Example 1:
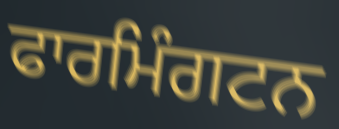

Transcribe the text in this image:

ਫਾਰਮਿੰਗਟਨ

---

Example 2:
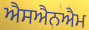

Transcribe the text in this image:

ਐਸਐਨਐਮ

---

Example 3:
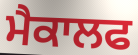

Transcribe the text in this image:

ਮੈਕਾਲਫ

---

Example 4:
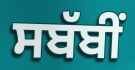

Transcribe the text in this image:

ਸਬੱਬੀਂ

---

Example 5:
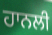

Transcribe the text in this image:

ਹਾਨਲੀ